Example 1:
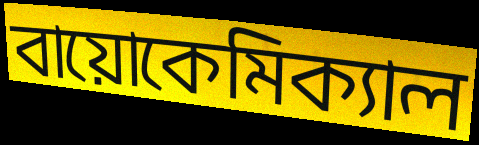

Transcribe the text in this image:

বায়োকেমিক্যাল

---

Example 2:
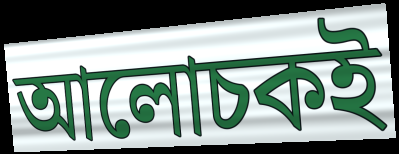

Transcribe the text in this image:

আলোচকই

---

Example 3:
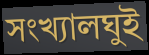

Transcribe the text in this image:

সংখ্যালঘুই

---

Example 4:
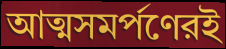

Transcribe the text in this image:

আত্মসমর্পণেরই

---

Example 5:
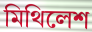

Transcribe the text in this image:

মিথিলেশ